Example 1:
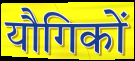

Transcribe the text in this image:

यौगिकों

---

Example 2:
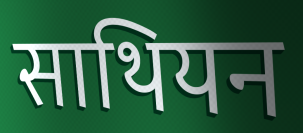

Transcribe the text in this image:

साथियन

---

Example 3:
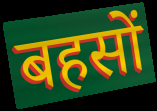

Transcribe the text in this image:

बहसों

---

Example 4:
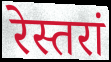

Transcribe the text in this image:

रेस्तरां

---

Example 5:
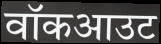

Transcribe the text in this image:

वॉकआउट